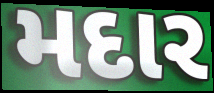
મદાર